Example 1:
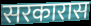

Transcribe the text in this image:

सरकारास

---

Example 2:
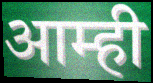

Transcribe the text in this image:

आम्‍ही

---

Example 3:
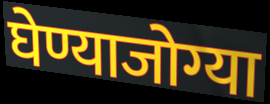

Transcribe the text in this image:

घेण्याजोग्या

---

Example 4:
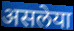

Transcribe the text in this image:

असलेया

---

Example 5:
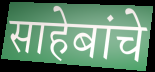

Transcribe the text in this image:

साहेबांचे